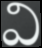
వి